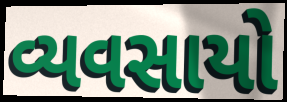
વ્યવસાયો